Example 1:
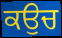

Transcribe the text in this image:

ਕਉਚ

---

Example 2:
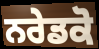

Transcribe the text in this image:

ਨਰੇਡਕੋ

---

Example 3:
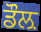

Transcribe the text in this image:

ਡੌਲ਼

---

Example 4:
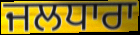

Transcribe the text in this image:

ਜਲਧਾਰਾ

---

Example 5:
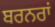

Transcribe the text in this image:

ਬਰਨਰਾਂ